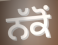
ਨੱਕੋਂ